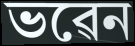
ভৱেন